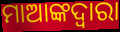
ମାଆଙ୍କଦ୍ଵାରା